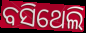
ବସିଥେଲି